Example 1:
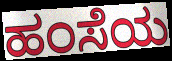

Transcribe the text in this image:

ಹಂಸೆಯ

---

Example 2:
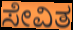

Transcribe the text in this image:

ಸೇವಿತ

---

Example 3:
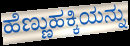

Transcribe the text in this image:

ಹೆಣ್ಣುಹಕ್ಕಿಯನ್ನು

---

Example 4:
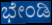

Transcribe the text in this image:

ಭೇಂಡಿ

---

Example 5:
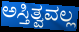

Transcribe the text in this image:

ಅಸ್ತಿತ್ವವಲ್ಲ